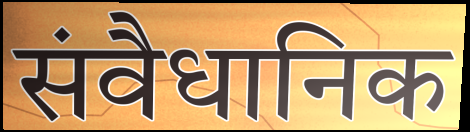
संवैधानिक